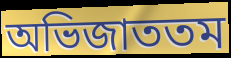
অভিজাততম